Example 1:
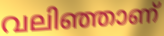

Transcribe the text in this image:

വലിഞ്ഞാണ്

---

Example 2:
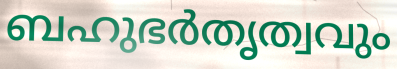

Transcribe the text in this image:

ബഹുഭർതൃത്വവും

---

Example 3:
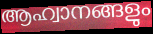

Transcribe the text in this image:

ആഹ്വാനങ്ങളും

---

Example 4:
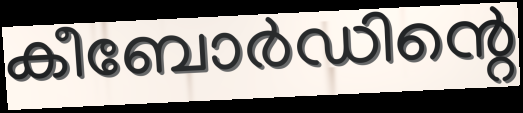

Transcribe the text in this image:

കീബോർഡിന്റെ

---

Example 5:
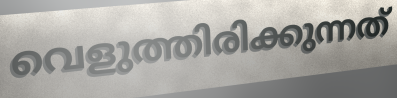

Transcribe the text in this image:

വെളുത്തിരിക്കുന്നത്